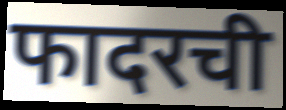
फादरची